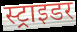
स्ट्राइडर